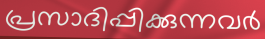
പ്രസാദിപ്പിക്കുന്നവർ